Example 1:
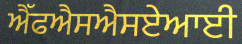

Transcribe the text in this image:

ਐੱਫਐਸਐਸਏਆਈ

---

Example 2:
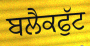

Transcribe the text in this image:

ਬਲੈਕਫੁੱਟ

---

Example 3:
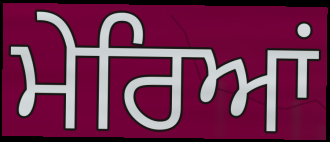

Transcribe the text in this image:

ਮੇਰਿਆਂ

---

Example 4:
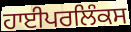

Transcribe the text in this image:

ਹਾਈਪਰਲਿੰਕਸ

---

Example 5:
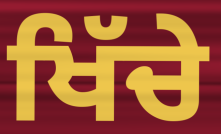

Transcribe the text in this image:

ਖਿੱਚੇ